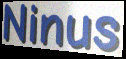
Ninus